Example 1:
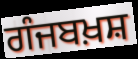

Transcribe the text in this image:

ਗੰਜਬਖ਼ਸ਼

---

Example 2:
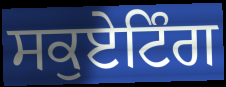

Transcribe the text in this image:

ਸਕੁਏਟਿੰਗ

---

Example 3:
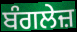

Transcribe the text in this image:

ਬੰਗਲੇਜ਼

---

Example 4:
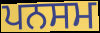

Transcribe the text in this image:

ਪਨਸਮ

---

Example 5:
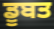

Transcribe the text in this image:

ਡੂਬਤ